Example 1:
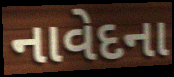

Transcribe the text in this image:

નાવેદના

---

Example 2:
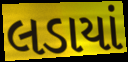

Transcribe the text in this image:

લડાયાં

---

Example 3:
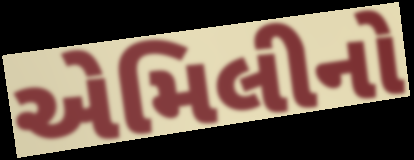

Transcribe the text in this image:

એમિલીનો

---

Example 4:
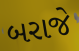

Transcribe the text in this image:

બરાજે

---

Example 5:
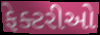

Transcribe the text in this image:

ફેક્ટરીઓ